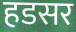
हडसर